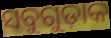
ସବୁଗୁଡ଼ାକ